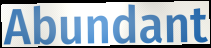
Abundant